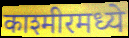
काश्मीरमध्ये